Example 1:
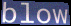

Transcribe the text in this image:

blow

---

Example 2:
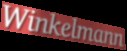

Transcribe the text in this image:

Winkelmann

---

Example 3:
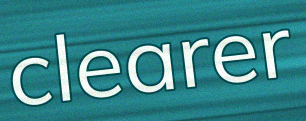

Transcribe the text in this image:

clearer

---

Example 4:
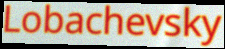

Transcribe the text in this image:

Lobachevsky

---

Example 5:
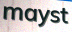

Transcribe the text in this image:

mayst